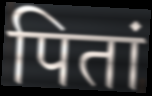
पितां